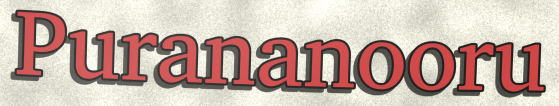
Purananooru